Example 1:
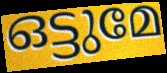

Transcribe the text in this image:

ഒട്ടുമേ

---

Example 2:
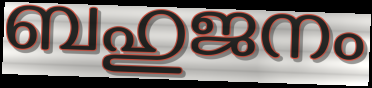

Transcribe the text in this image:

ബഹുജനം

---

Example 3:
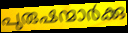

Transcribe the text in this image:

പുരുഷന്മാർക്കു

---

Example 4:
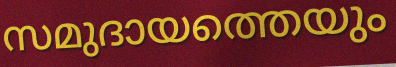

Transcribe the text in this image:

സമുദായത്തെയും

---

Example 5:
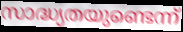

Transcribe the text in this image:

സാദ്ധ്യതയുണ്ടെന്ന്